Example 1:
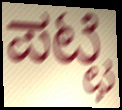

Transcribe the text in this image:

ಪಟ್ಟೆ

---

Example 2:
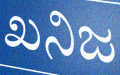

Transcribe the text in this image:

ಖನಿಜ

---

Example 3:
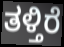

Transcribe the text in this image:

ತಳ್ತಿರೆ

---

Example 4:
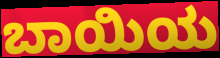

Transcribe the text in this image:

ಬಾಯಿಯ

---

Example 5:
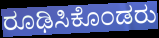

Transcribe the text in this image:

ರೂಢಿಸಿಕೊಂಡರು